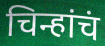
चिन्हांचं